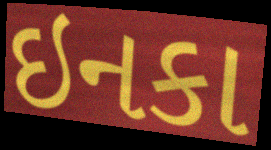
ઇનકા